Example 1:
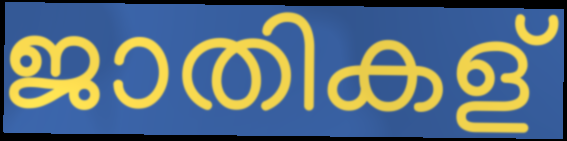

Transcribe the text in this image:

ജാതികള്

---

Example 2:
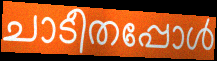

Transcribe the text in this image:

ചാടീതപ്പോൾ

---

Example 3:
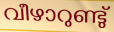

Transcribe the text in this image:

വീഴാറുണ്ടു്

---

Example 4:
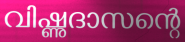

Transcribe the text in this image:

വിഷ്ണുദാസന്റെ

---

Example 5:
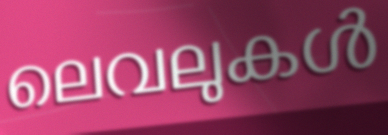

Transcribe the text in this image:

ലെവലുകൾ